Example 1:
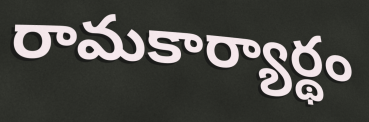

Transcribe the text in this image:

రామకార్యార్థం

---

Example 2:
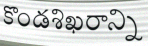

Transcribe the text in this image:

కొండశిఖరాన్ని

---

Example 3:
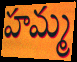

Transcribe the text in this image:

హమ్మ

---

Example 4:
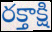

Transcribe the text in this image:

రక్తాక్షి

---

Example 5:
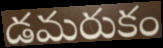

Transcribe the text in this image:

డమరుకం